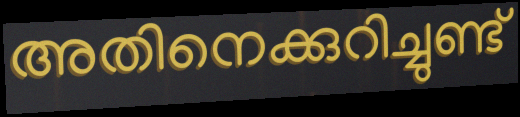
അതിനെക്കുറിച്ചുണ്ട്